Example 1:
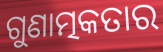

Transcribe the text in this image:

ଗୁଣାତ୍ମକତାର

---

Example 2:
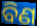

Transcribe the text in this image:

ବିଣ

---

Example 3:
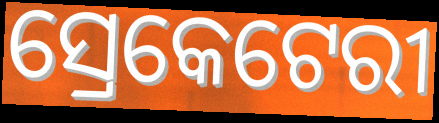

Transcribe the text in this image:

ସ୍ରେକେଟେରୀ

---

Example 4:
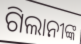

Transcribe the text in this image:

ଗିଲାନୀଙ୍କ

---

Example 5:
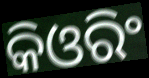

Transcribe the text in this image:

କିଓରିଂ